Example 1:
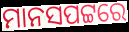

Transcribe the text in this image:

ମାନସପଟ୍ଟରେ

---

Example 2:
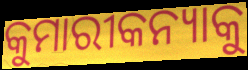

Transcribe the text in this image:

କୁମାରୀକନ୍ୟାକୁ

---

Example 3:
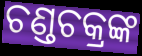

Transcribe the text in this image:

ଚଣ୍ଡଚକ୍ରଙ୍କ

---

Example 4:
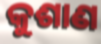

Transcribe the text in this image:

କୁଶାଣ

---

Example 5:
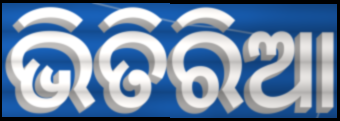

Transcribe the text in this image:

ଭିତିରିଆ